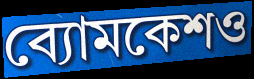
ব্যোমকেশও